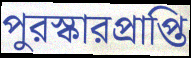
পুরস্কারপ্রাপ্তি